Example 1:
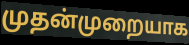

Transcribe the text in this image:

முதன்முறையாக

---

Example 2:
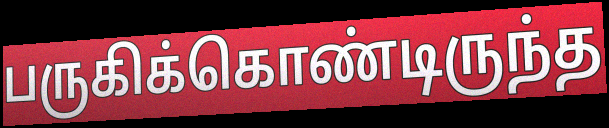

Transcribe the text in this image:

பருகிக்கொண்டிருந்த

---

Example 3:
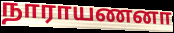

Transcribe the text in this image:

நாராயணனா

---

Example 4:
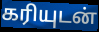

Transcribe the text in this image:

கரியுடன்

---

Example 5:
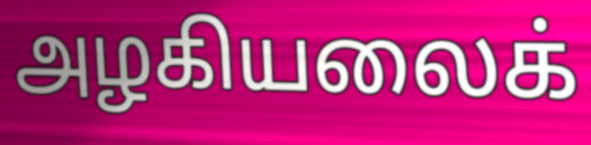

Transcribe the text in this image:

அழகியலைக்